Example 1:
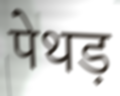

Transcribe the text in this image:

पेथड़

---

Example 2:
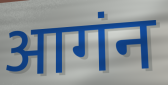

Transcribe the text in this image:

आगंन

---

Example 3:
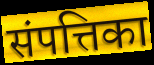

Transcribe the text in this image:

संपत्तिका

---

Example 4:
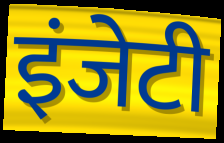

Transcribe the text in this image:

इंजेटी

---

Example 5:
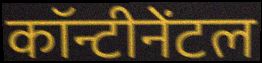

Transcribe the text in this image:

कॉन्टीनेंटल